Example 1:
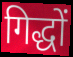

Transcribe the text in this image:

गिद्धों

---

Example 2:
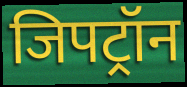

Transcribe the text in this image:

जिपट्रॉन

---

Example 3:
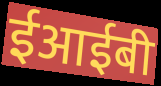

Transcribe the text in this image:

ईआईबी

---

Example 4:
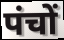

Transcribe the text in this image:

पंचों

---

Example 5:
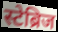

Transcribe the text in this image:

स्टेब्रिज